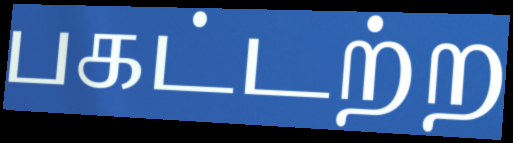
பகட்டற்ற